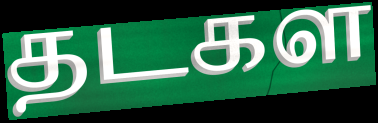
தடகள